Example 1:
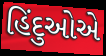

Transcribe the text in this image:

હિંદુઓએ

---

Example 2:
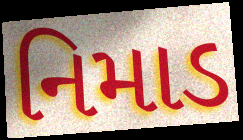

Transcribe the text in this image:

નિમાડ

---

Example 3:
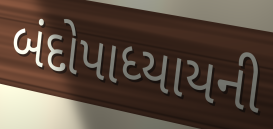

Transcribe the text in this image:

બંદોપાધ્યાયની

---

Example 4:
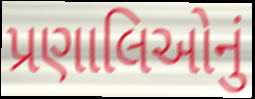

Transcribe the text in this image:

પ્રણાલિઓનું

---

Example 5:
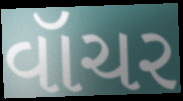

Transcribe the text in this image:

વૉચર